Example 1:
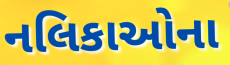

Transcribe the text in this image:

નલિકાઓના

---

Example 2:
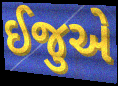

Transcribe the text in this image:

ઈજુએ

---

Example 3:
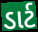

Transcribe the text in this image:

ડાર્ટ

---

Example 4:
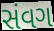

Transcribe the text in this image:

સંવગ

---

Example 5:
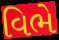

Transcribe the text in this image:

વિભે